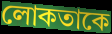
লোকতাকে